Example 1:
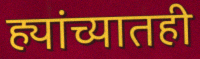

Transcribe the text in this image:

ह्यांच्यातही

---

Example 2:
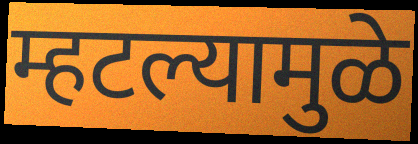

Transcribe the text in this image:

म्हटल्यामुळे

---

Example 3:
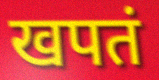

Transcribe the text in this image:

खपतं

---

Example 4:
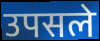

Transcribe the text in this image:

उपसले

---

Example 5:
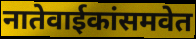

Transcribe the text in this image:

नातेवाईकांसमवेत